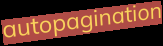
autopagination